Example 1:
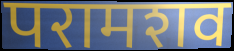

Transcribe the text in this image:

परामशव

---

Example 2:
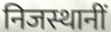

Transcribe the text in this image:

निजस्थानीं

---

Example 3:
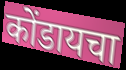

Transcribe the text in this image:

कोंडायचा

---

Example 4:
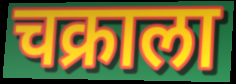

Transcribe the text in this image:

चक्राला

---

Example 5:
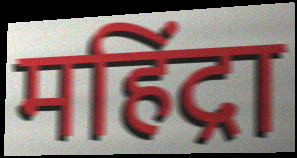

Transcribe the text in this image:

महिंद्रा